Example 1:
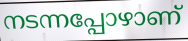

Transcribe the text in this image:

നടന്നപ്പോഴാണ്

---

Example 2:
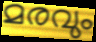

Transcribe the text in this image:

മരവും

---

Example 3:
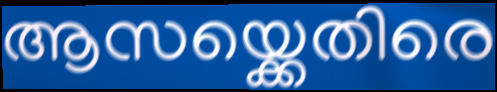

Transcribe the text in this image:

ആസയ്ക്കെതിരെ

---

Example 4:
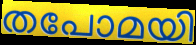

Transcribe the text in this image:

തപോമയി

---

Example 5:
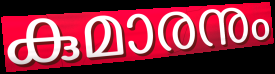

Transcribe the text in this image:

കുമാരനും